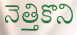
నెత్తికొని